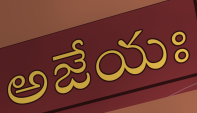
అజేయః